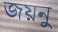
জয়নু